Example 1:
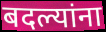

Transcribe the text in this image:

बदल्यांना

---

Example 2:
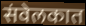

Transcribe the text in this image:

संवेलकात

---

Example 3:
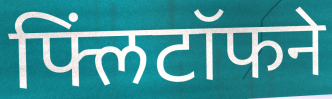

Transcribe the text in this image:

फ्लिंटॉफने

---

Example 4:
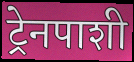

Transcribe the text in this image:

ट्रेनपाशी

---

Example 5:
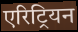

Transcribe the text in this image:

एरिट्रियन